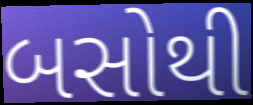
બસોથી